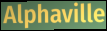
Alphaville